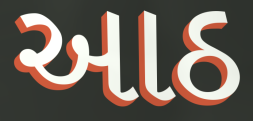
આઠ